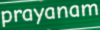
prayanam